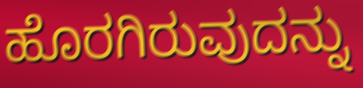
ಹೊರಗಿರುವುದನ್ನು